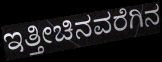
ಇತ್ತೀಚಿನವರೆಗಿನ